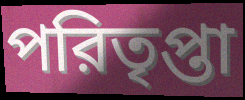
পরিতৃপ্তা